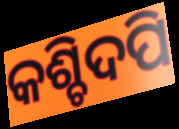
କଶ୍ଚିଦପି